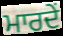
ਮਾਰਦੇਂ